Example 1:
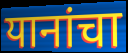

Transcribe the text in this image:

यानांचा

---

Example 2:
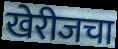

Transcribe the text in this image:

खेरीजचा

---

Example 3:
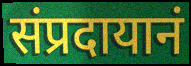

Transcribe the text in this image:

संप्रदायानं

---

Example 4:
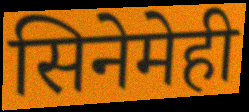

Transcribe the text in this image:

सिनेमेही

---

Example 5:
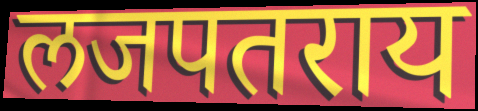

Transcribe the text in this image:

लजपतराय